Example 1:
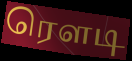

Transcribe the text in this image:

ரௌடி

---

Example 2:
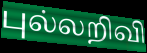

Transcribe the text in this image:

புல்லறிவி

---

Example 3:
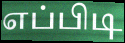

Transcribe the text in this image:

எப்பிடி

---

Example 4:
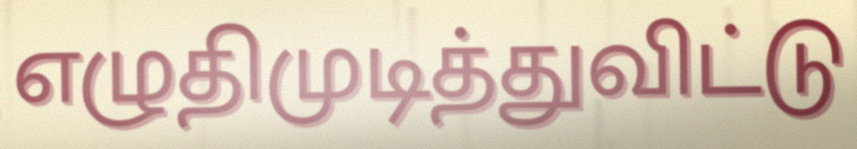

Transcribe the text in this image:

எழுதிமுடித்துவிட்டு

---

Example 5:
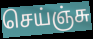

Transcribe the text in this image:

செய்ஞ்சு